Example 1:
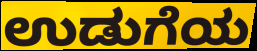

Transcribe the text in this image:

ಉಡುಗೆಯ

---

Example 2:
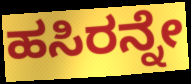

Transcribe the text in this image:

ಹಸಿರನ್ನೇ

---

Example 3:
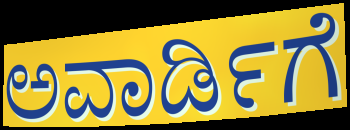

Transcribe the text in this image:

ಅವಾರ್ಡಿಗೆ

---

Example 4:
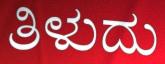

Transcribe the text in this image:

ತಿಳುದು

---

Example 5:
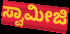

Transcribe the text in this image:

ಸ್ವಾಮೀಜಿ